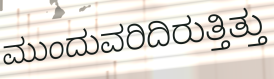
ಮುಂದುವರಿದಿರುತ್ತಿತ್ತು